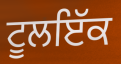
ਟੂਲਇੱਕ